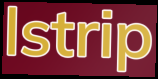
lstrip